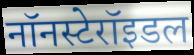
नॉनस्टेरॉइडल